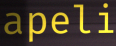
apeli